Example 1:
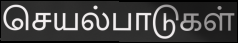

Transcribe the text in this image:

செயல்பாடுகள்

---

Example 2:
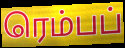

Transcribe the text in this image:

ரெம்பப்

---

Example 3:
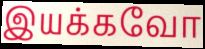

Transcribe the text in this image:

இயக்கவோ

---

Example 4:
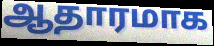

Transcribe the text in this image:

ஆதாரமாக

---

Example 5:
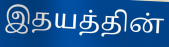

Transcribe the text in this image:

இதயத்தின்